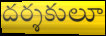
దర్శకులూ